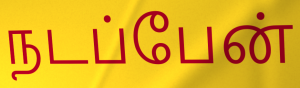
நடப்பேன்